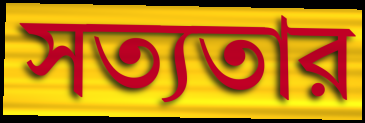
সত্যতার